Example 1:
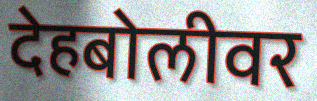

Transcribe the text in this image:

देहबोलीवर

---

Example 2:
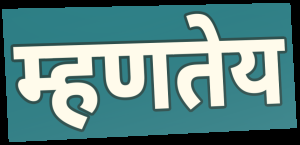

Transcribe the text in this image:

म्हणतेय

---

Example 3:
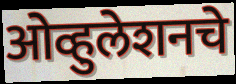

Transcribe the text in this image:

ओव्हुलेशनचे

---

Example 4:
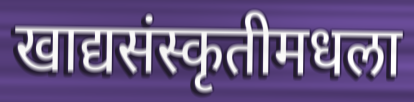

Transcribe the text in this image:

खाद्यसंस्कृतीमधला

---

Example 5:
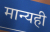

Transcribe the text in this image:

मान्यही